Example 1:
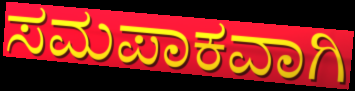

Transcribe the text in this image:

ಸಮಪಾಕವಾಗಿ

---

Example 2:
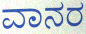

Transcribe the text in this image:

ವಾನರ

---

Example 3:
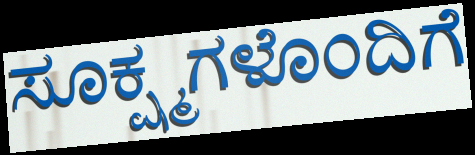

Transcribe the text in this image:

ಸೂಕ್ಷ್ಮಗಳೊಂದಿಗೆ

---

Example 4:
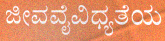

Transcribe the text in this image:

ಜೀವವೈವಿಧ್ಯತೆಯ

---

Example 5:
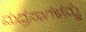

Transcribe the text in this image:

ಮದ್ರಸಾಗಳನ್ನು